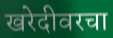
खरेदीवरचा